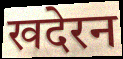
खदेरन